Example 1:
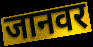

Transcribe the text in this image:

जानवर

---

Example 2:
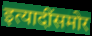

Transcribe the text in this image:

इत्यादींसमोर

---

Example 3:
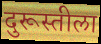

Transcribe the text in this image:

दुरूस्तीला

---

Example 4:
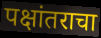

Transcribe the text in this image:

पक्षांतराचा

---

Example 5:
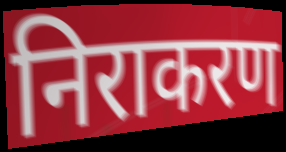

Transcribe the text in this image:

निराकरण